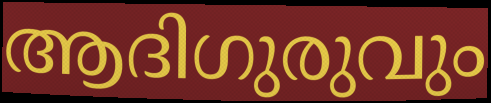
ആദിഗുരുവും